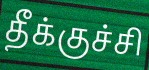
தீக்குச்சி